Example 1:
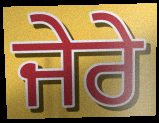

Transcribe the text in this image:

ਜੇਰੇ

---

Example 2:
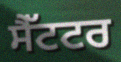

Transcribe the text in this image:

ਸੈੱਟਟਰ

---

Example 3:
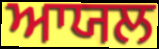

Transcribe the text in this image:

ਆਯਲ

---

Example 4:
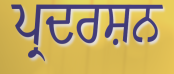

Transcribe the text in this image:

ਪ੍ਰਦਰਸ਼ਨ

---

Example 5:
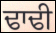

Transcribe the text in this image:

ਢਾਢੀ